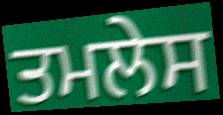
ਤਮਲੇਸ